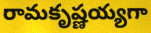
రామకృష్ణయ్యగా